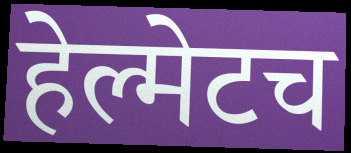
हेल्मेटच